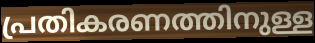
പ്രതികരണത്തിനുള്ള